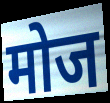
मोज